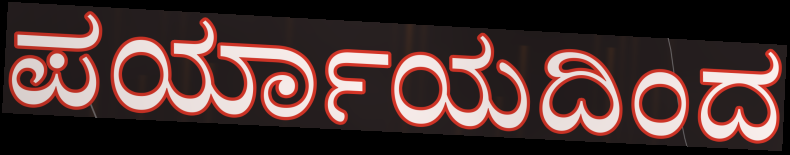
ಪರ್ಯಾಯದಿಂದ